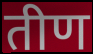
तीण